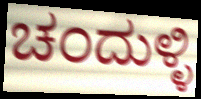
ಚಂದುಳ್ಳಿ